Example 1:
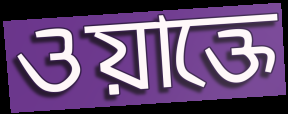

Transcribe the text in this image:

ওয়াক্তে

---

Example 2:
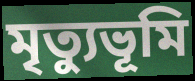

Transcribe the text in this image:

মৃত্যুভূমি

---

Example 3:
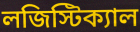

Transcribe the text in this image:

লজিস্টিক্যাল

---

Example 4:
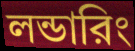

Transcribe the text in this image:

লন্ডারিং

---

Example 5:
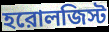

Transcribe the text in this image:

হরোলজিস্ট